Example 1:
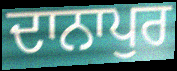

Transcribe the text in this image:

ਦਾਨਾਪੁਰ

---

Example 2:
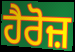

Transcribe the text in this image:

ਹੈਰੋਜ਼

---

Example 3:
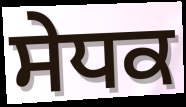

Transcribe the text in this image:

ਸੇਧਕ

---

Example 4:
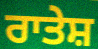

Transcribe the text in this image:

ਰਾਤੇਸ਼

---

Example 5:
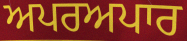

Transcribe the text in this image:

ਅਪਰਅਪਾਰ